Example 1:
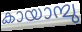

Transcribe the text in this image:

കായാമ്പു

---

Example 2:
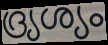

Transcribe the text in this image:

ദ്ര്യശ്യം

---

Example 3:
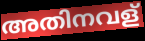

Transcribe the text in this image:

അതിനവള്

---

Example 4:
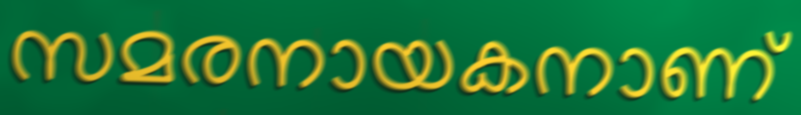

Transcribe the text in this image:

സമരനായകനാണ്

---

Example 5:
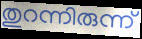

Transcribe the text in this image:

തുറന്നിരുന്ന്